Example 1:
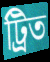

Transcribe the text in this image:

ট্ৰিত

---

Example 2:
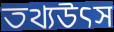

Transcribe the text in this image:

তথ্যউৎস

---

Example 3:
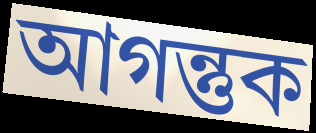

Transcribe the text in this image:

আগন্তুক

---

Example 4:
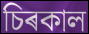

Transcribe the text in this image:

চিৰকাল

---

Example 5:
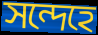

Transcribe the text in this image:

সন্দেহে